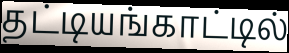
தட்டியங்காட்டில்